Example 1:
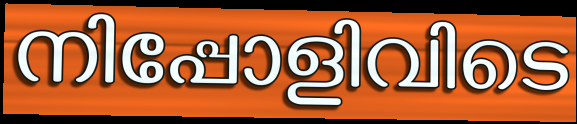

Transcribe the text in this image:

നിപ്പോളിവിടെ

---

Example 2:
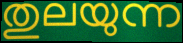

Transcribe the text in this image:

തുലയുന്ന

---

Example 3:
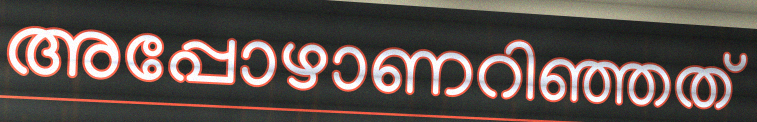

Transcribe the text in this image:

അപ്പോഴാണറിഞ്ഞത്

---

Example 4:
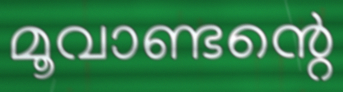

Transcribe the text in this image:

മൂവാണ്ടന്റെ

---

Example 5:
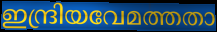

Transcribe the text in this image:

ഇന്ദ്രിയവേമത്തതാ